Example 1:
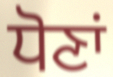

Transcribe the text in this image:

ਧੋਣਾਂ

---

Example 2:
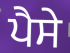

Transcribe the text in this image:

ਪੈਸੇ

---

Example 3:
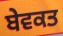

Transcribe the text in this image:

ਬੇਵਕਤ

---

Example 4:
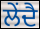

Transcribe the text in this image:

ਲੇਂਦੈ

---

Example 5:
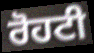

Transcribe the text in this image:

ਰੋਹਟੀ